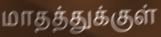
மாதத்துக்குள்